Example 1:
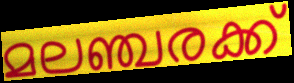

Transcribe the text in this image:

മലഞ്ചരക്ക്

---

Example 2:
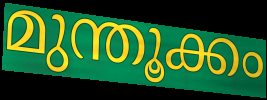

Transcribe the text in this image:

മുന്തൂക്കം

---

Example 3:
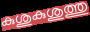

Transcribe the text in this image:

കുശുകുശുത്തു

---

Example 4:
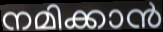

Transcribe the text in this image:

നമിക്കാൻ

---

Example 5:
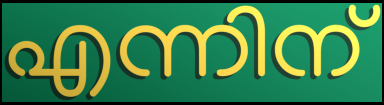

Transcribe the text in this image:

എന്നിന്